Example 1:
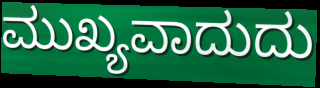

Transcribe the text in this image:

ಮುಖ್ಯವಾದುದು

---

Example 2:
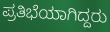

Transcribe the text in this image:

ಪ್ರತಿಭೆಯಾಗಿದ್ದರು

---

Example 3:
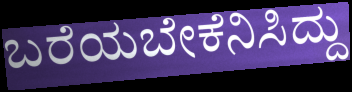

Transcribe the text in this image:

ಬರೆಯಬೇಕೆನಿಸಿದ್ದು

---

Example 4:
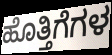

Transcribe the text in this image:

ಹೊತ್ತಿಗೆಗಳ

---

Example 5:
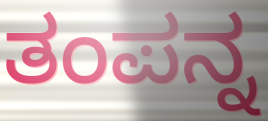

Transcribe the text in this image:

ತಂಪನ್ನ